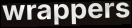
wrappers